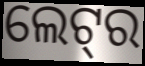
ଲେଟ୍‌ର